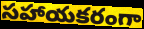
సహాయకరంగా